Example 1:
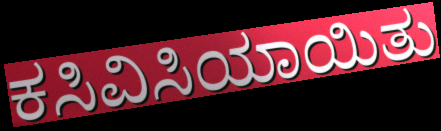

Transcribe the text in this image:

ಕಸಿವಿಸಿಯಾಯಿತು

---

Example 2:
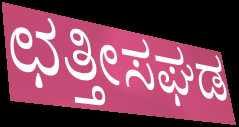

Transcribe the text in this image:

ಛತ್ತೀಸಘಡ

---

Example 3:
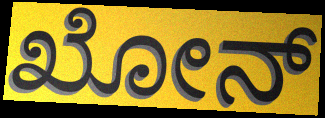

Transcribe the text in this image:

ಖೋನ್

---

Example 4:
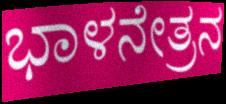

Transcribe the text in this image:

ಭಾಳನೇತ್ರನ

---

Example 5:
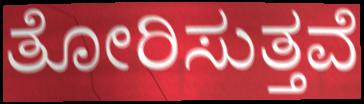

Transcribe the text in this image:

ತೋರಿಸುತ್ತವೆ